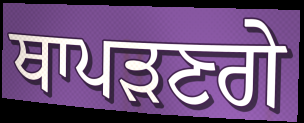
ਥਾਪੜਣਗੇ